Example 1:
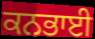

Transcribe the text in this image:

ਕਨਭਾਈ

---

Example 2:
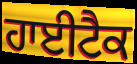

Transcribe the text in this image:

ਹਾਈਟੈਕ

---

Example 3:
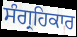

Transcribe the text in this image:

ਸੰਗ੍ਰਹਿਕਾਰ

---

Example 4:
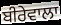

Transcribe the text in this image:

ਬੀਰੇਵਾਲਾ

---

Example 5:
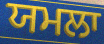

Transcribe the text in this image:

ਯਮਲਾ